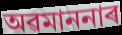
অৱমাননাৰ